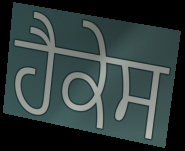
ਹੈਕੇਸ